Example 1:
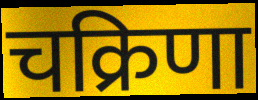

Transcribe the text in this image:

चक्रिणा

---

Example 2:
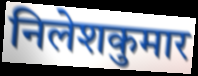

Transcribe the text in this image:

निलेशकुमार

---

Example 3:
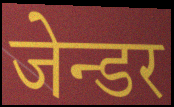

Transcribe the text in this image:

जेन्डर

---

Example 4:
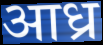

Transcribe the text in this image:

आध्र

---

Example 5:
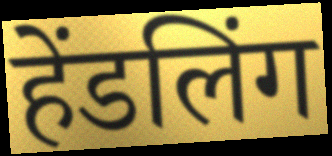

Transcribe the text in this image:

हेंडलिंग